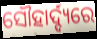
ସୌହାର୍ଦ୍ଦ୍ୟରେ